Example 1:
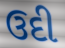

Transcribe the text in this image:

ઉદી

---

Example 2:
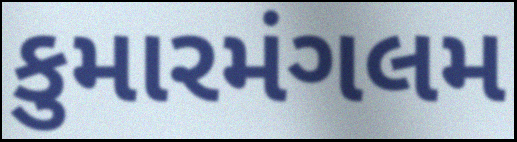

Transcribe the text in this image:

કુમારમંગલમ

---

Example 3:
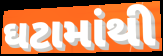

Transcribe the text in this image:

ઘટામાંથી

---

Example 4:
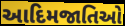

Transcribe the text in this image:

આદિમજાતિઓ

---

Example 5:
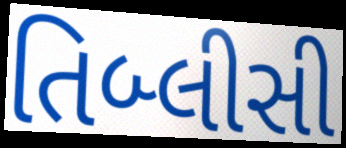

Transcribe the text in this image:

તિબ્લીસી